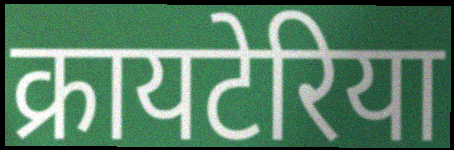
क्रायटेरिया